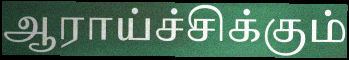
ஆராய்ச்சிக்கும்